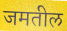
जमतील